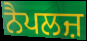
ਨੈਪਲਜ਼